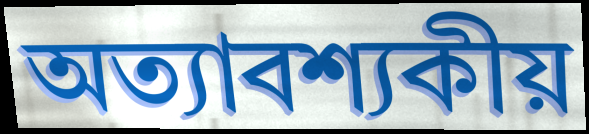
অত্যাবশ্যকীয়